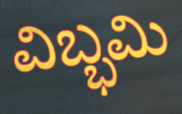
ವಿಬ್ಭಮಿ